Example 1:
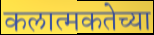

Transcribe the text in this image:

कलात्मकतेच्या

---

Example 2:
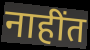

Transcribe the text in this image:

नाहींत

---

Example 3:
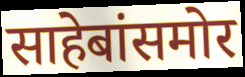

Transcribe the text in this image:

साहेबांसमोर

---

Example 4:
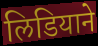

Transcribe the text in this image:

लिडियाने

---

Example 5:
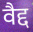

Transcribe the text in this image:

वैद्द